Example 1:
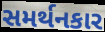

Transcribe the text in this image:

સમર્થનકાર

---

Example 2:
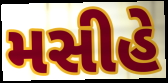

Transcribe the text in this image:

મસીહે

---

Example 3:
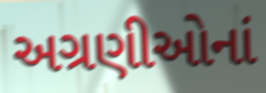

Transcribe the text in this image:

અગ્રણીઓનાં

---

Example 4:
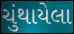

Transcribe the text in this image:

ચુંથાયેલા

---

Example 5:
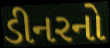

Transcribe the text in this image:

ડીનરનો